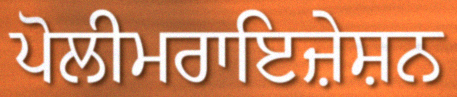
ਪੋਲੀਮਰਾਇਜ਼ੇਸ਼ਨ